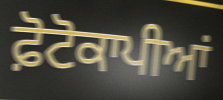
ਫ਼ੋਟੋਕਾਪੀਆਂ